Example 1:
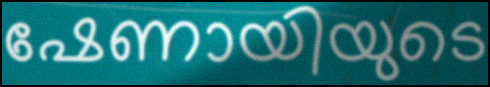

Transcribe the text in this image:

ഷേണായിയുടെ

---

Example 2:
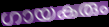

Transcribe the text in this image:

ഗായകരും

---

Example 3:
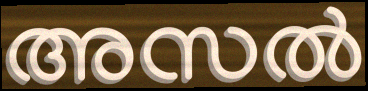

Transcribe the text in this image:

അസൽ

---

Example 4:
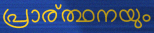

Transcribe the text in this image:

പ്രാര്ത്ഥനയും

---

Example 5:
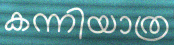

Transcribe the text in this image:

കന്നിയാത്ര